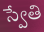
స్వేతి